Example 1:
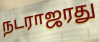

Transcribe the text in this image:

நடராஜரது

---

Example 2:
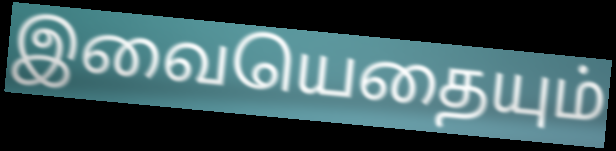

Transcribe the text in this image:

இவையெதையும்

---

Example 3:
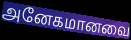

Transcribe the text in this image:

அனேகமானவை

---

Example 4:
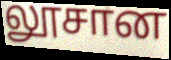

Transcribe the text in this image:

லூசான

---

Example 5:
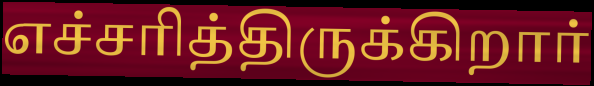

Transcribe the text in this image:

எச்சரித்திருக்கிறார்